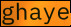
ghaye